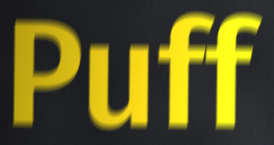
Puff